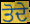
ਤੋਦੇ